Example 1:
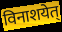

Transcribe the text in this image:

विनाशयेत्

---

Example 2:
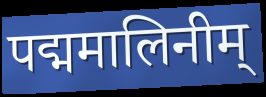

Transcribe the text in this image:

पद्ममालिनीम्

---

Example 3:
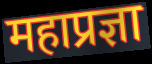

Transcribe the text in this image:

महाप्रज्ञा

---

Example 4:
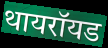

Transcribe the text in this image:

थायरॉयड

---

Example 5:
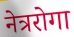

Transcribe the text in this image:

नेत्ररोगा